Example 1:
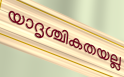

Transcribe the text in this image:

യാദൃശ്ചികതയല്ല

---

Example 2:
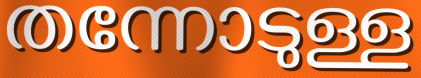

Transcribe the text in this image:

തന്നോടുള്ള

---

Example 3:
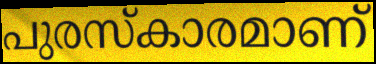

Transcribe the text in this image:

പുരസ്കാരമാണ്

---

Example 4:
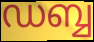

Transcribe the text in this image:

ഡബ്ബ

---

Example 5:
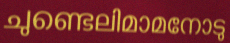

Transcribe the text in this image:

ചുണ്ടെലിമാമനോടു